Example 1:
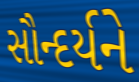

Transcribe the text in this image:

સૌન્દર્યને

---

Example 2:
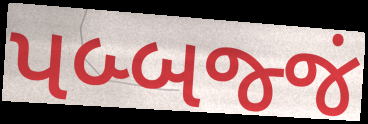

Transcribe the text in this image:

પબ્બજ્જં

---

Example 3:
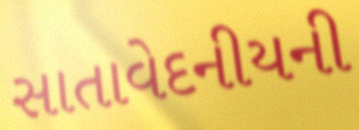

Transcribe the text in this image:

સાતાવેદનીયની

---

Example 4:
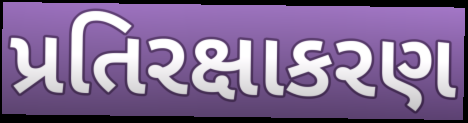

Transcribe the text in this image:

પ્રતિરક્ષાકરણ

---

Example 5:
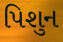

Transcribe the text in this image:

પિશુન